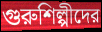
গুরুশিল্পীদের